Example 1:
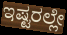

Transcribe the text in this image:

ಇಷ್ಟರಲ್ಲೇ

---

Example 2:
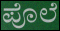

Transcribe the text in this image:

ಪೊಲೆ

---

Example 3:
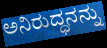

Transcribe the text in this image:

ಅನಿರುದ್ಧನನ್ನು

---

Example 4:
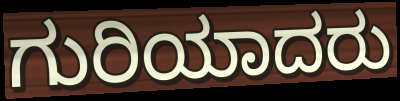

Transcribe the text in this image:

ಗುರಿಯಾದರು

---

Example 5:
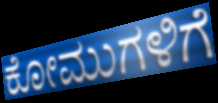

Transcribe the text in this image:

ಕೋಮುಗಳಿಗೆ